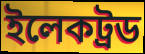
ইলেকট্রড